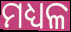
ମଧ୍ୟଳ